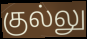
குல்லு